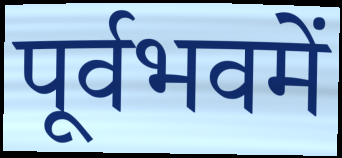
पूर्वभवमें